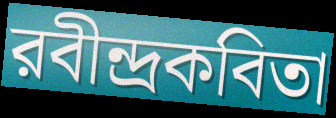
রবীন্দ্রকবিতা